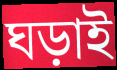
ঘড়াই